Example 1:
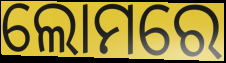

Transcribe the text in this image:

ଲୋମରେ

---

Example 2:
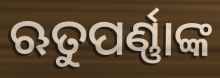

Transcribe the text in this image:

ଋତୁପର୍ଣ୍ଣାଙ୍କ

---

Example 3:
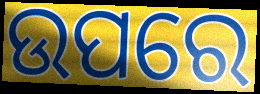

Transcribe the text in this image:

ଉପରେ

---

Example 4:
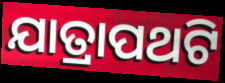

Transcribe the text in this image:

ଯାତ୍ରାପଥଟି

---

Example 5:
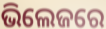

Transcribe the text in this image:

ଭିଲେଜରେ